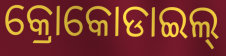
କ୍ରୋକୋଡାଇଲ୍